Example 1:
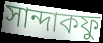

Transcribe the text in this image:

সান্দাকফু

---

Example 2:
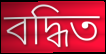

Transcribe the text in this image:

বদ্ধিত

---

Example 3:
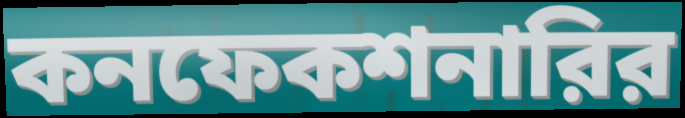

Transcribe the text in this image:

কনফেকশনারির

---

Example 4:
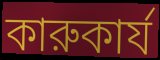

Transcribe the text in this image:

কারুকার্য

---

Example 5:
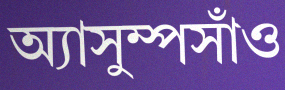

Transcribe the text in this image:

অ্যাসুম্পসাঁও